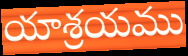
యాశ్రయము